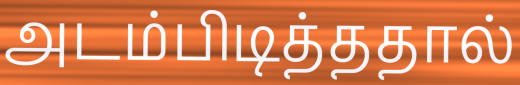
அடம்பிடித்ததால்